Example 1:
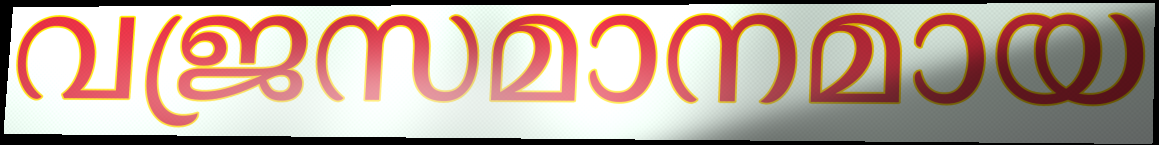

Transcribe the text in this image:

വജ്രസമാനമായ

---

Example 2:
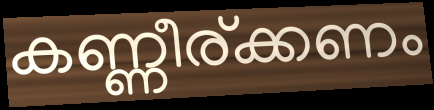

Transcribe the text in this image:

കണ്ണീര്ക്കണം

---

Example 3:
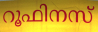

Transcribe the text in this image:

റൂഫിനസ്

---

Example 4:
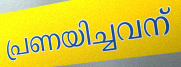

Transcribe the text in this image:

പ്രണയിച്ചവന്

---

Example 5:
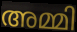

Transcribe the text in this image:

അമ്മി